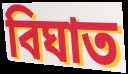
বিঘাত